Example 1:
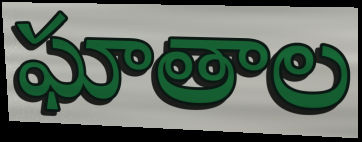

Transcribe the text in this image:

ఘాతాల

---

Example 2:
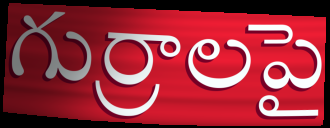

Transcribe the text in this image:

గుర్రాలపై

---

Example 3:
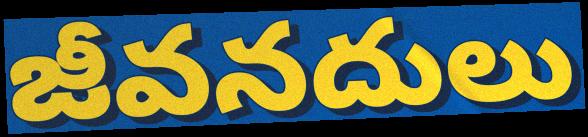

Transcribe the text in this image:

జీవనదులు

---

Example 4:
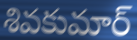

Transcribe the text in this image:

శివకుమార్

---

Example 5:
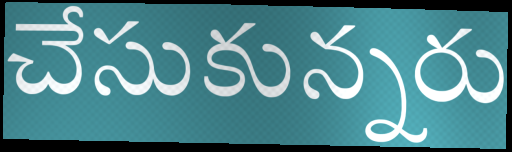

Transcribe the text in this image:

చేసుకున్నరు